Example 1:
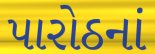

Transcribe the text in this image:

પારોઠનાં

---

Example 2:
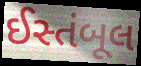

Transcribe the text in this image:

ઈસ્તંબૂલ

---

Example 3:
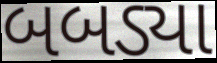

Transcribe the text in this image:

બબડ્યા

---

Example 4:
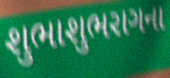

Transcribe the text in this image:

શુભાશુભરાગના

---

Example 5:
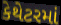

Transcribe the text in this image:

કેથેટરમાં